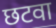
छटवा